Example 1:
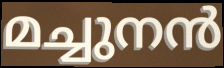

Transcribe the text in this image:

മച്ചുനൻ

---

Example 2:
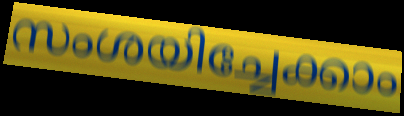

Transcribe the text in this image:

സംശയിച്ചേക്കാം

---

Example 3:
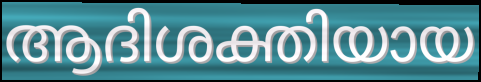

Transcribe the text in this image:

ആദിശക്തിയായ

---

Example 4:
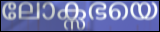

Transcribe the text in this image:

ലോക്സഭയെ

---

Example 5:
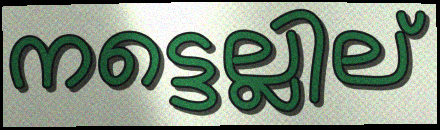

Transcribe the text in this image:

നട്ടെല്ലില്